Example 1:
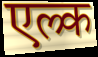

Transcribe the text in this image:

एल्क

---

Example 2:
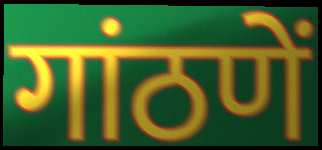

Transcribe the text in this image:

गांठणें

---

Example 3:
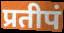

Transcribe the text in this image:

प्रतीपं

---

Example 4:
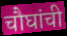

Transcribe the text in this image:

चौघांची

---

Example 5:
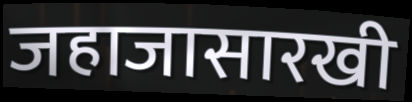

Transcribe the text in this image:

जहाजासारखी